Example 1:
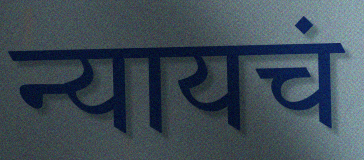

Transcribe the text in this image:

न्यायचं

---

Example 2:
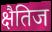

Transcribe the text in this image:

क्षैतिज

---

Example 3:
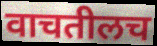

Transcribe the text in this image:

वाचतीलच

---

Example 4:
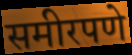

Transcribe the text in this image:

समीरपणे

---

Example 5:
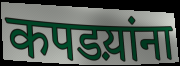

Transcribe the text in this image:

कपडय़ांना